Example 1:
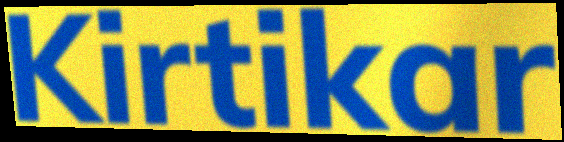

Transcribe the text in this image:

Kirtikar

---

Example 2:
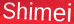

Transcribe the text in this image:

Shimei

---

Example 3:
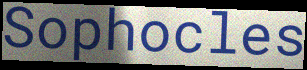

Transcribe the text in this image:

Sophocles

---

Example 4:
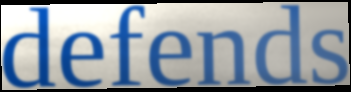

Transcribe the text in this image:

defends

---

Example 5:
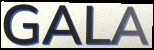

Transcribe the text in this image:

GALA